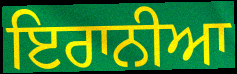
ਇਰਾਨੀਆ